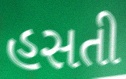
હસતી